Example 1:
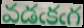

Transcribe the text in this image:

వడఁకఁగ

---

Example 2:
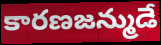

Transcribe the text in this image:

కారణజన్ముడే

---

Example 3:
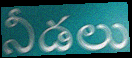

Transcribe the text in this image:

నీడలు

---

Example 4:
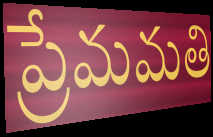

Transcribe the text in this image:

ప్రేమమతి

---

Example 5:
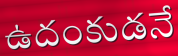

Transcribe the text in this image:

ఉదంకుడనే